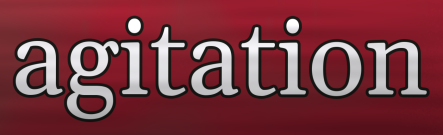
agitation